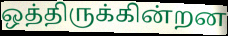
ஒத்திருக்கின்றன